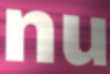
nu